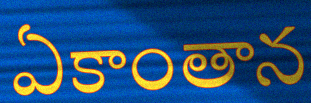
ఏకాంతాన